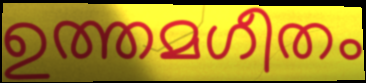
ഉത്തമഗീതം